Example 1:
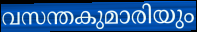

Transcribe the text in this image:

വസന്തകുമാരിയും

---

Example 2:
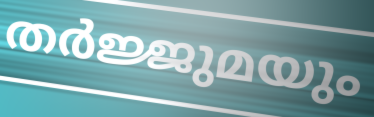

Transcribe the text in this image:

തർജ്ജുമയും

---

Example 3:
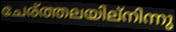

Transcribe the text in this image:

ചേര്ത്തലയില്നിന്നു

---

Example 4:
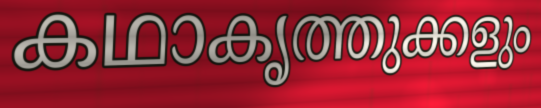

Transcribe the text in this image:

കഥാകൃത്തുക്കളും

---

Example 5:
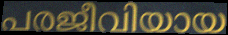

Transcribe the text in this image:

പരജീവിയായ